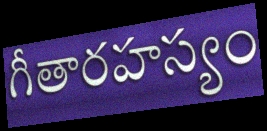
గీతారహస్యం